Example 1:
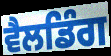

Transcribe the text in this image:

ਵੈਲਡਿੰਗ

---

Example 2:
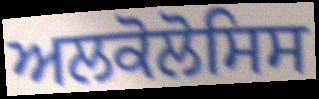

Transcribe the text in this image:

ਅਲਕੋਲੋਸਿਸ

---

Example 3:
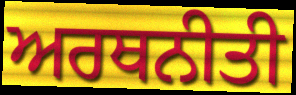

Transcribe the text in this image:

ਅਰਥਨੀਤੀ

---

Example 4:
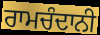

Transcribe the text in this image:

ਰਾਮਚੰਦਾਨੀ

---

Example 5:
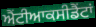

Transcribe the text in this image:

ਐਂਟੀਆਕਸੀਡੈਂਟਾਂ